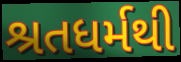
શ્રતધર્મથી